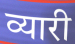
व्यारी